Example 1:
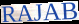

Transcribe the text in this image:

RAJAB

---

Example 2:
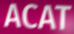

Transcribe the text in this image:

ACAT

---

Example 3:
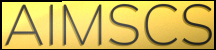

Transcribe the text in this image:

AIMSCS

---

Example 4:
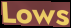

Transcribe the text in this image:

Lows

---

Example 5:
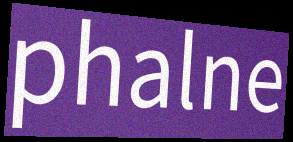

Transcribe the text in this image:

phalne